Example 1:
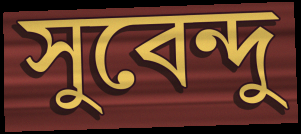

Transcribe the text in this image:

সুবেন্দু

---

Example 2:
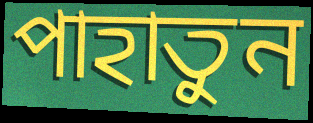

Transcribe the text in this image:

পাহাতুন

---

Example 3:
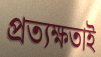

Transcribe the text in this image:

প্রত্যক্ষতাই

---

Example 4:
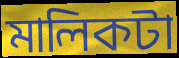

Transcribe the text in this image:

মালিকটা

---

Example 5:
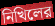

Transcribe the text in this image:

নিখিলের